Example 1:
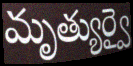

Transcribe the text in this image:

మృత్యుర్వై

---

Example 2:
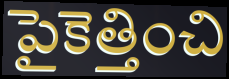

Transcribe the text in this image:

పైకెత్తించి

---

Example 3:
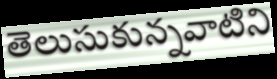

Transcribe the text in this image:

తెలుసుకున్నవాటిని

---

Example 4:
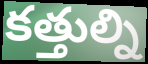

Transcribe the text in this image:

కత్తుల్ని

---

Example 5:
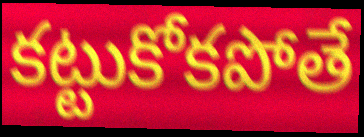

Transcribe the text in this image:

కట్టుకోకపోతే